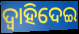
ଦ୍ବାହିଦେଇ